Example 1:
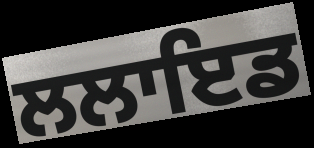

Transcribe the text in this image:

ਲਲਾਇਡ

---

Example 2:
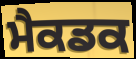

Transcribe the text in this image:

ਮੈਕਡਕ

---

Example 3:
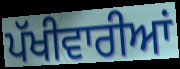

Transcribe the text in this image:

ਪੱਖੀਵਾਰੀਆਂ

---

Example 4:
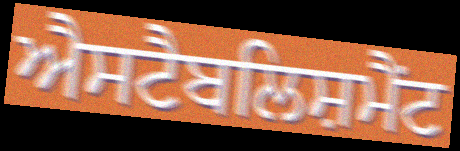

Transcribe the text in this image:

ਐਸਟੈਬਲਿਸ਼ਮੈਂਟ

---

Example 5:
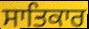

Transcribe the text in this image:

ਸਾਤਿਕਾਰ